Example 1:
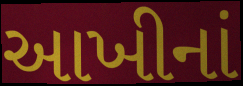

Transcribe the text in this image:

આખીનાં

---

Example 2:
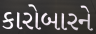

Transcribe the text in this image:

કારોબારને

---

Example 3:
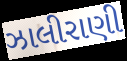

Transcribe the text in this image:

ઝાલીરાણી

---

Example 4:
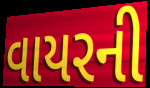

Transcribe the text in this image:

વાયરની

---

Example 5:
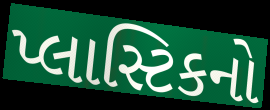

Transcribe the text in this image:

પ્લાસ્ટિકનો